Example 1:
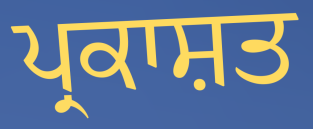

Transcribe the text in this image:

ਪ੍ਰਕਾਸ਼ਤ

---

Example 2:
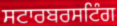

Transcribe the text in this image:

ਸਟਾਰਬਰਸਟਿੰਗ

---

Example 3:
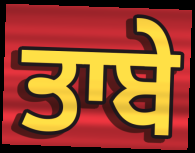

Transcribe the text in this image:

ਤਾਬੇ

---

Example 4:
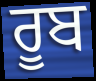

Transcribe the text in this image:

ਰੂਬ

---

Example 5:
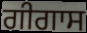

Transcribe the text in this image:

ਗੀਗਾਸ